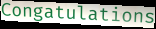
Congatulations